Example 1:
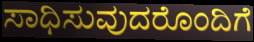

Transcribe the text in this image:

ಸಾಧಿಸುವುದರೊಂದಿಗೆ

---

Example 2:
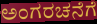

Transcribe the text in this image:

ಅಂಗರಚನೆಗೆ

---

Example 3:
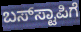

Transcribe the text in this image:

ಬಸ್‌ಸ್ಟಾಪಿಗೆ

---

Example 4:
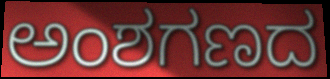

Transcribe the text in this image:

ಅಂಶಗಣದ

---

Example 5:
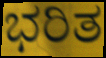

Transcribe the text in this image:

ಭರಿತ